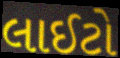
લાઈટો